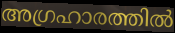
അഗ്രഹാരത്തിൽ